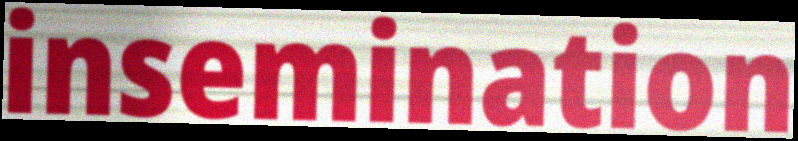
insemination